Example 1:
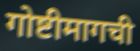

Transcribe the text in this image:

गोष्टीमागची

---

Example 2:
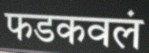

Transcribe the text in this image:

फडकवलं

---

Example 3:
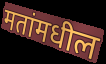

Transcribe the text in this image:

मतांमधील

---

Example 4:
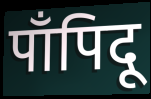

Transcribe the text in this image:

पाँपिदू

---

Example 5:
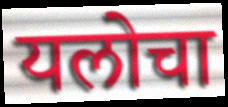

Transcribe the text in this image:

यलोचा